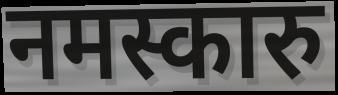
नमस्कारु